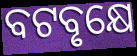
ବଟବୃକ୍ଷେ